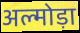
अल्मोड़ा